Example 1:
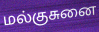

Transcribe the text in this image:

மல்குசுனை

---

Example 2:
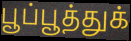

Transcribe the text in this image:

பூப்பூத்துக்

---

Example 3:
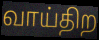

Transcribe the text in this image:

வாய்திற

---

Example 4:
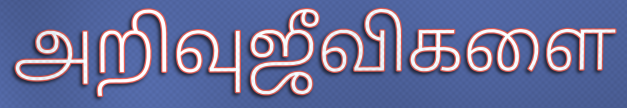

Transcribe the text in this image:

அறிவுஜீவிகளை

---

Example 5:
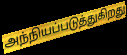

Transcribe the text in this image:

அந்நியப்படுத்துகிறது